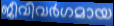
ജീവിവർഗമായ